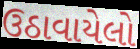
ઉઠાવાયેલો